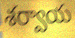
శర్వాయ